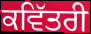
ਕਵਿੱਤਰੀ